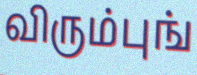
விரும்புங்